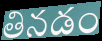
తినడం